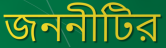
জননীটির